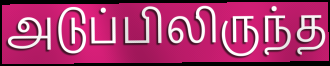
அடுப்பிலிருந்த